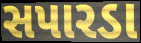
સપારડા